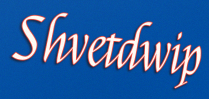
Shvetdwip